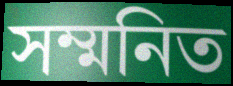
সম্মনিত